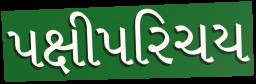
પક્ષીપરિચય